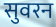
सुवरन